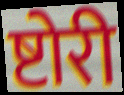
ष्टोरी